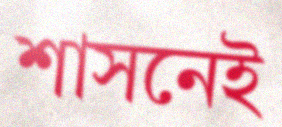
শাসনেই